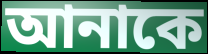
আনাকে